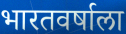
भारतवर्षाला